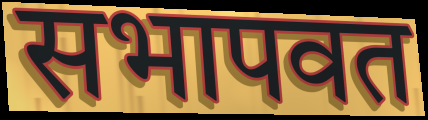
सभापवत